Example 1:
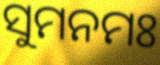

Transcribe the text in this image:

ସୁମନମଃ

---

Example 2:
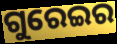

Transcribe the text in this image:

ଗୁରେଇର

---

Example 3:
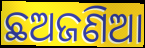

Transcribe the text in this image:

ଛଅଜଣିଆ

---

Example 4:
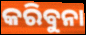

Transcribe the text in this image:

କରିବୁନା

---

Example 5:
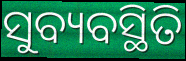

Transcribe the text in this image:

ସୁବ୍ୟବସ୍ଥିତି